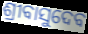
ଶ୍ରୀବାସୁଦେବ